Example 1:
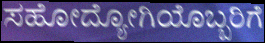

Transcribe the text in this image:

ಸಹೋದ್ಯೋಗಿಯೊಬ್ಬರಿಗೆ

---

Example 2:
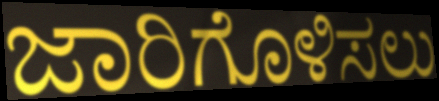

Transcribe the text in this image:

ಜಾರಿಗೊಳಿಸಲು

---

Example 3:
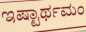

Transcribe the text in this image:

ಇಷ್ಟಾರ್ಥಮಂ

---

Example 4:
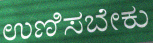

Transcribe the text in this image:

ಉಣಿಸಬೇಕು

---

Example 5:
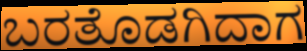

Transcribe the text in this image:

ಬರತೊಡಗಿದಾಗ